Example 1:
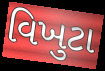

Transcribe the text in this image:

વિખુટા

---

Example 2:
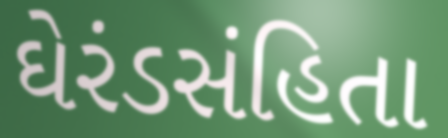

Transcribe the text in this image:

ઘેરંડસંહિતા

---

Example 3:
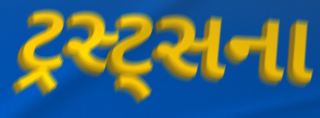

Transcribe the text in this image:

ટ્રસ્ટ્સના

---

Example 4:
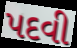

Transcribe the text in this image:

પદવી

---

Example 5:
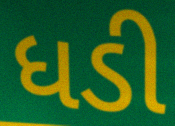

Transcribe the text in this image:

ધડી